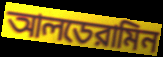
আলডেরামিন